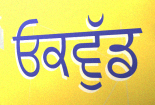
ਓਕਵੁੱਡ